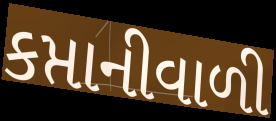
કપ્તાનીવાળી